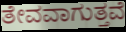
ತೇವವಾಗುತ್ತವೆ